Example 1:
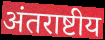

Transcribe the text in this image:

अंतराष्टीय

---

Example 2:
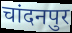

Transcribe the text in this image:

चांदनपुर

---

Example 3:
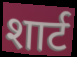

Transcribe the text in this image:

शार्ट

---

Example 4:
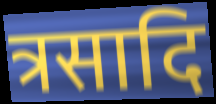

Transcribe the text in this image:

त्रसादि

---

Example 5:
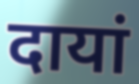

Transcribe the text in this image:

दायां